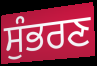
ਸੁੰਭਰਣ